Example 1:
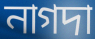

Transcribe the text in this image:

নাগদা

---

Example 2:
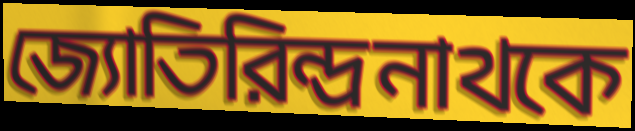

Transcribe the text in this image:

জ্যোতিরিন্দ্রনাথকে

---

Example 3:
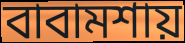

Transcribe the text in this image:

বাবামশায়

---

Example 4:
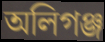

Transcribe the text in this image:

অলিগঞ্জ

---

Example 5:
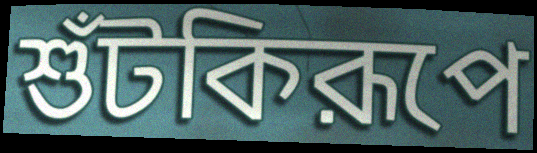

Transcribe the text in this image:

শুঁটকিরূপে